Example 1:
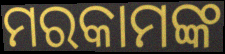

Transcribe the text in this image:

ମରକାମଙ୍କ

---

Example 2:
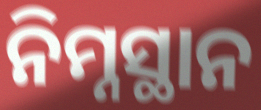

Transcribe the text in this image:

ନିମ୍ନସ୍ଥାନ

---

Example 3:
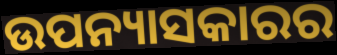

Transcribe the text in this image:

ଉପନ୍ୟାସକାରର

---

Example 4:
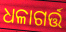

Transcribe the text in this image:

ଧଳାଗର୍ତ୍ତ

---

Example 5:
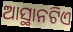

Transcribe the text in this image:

ଆସ୍ଥାନଟିଏ